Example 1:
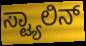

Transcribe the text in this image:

ಸ್ಟ್ಯಾಲಿನ್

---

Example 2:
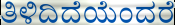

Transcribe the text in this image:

ತಿಳಿದಿದೆಯೆಂದರೆ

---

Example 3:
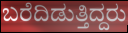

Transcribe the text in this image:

ಬರೆದಿಡುತ್ತಿದ್ದರು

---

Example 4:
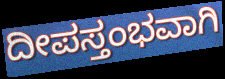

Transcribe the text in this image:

ದೀಪಸ್ತಂಭವಾಗಿ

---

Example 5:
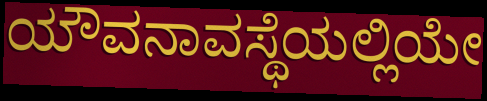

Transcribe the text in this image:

ಯೌವನಾವಸ್ಥೆಯಲ್ಲಿಯೇ